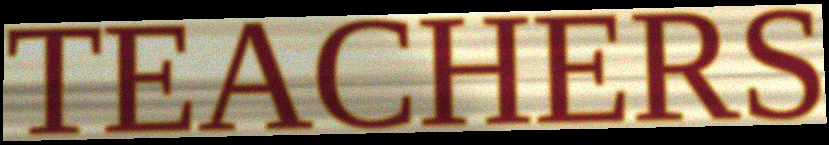
TEACHERS